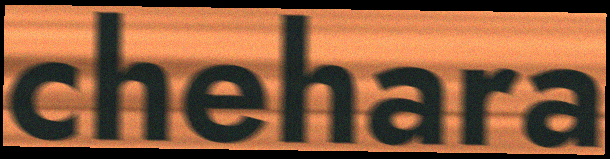
chehara